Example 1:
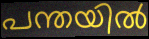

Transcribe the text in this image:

പന്തയിൽ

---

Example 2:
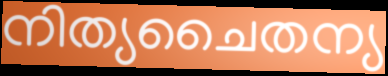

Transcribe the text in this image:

നിത്യചൈതന്യ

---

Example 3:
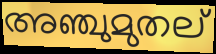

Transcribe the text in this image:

അഞ്ചുമുതല്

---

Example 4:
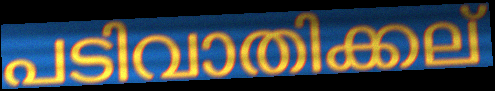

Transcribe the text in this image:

പടിവാതിക്കല്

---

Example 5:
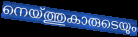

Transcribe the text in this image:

നെയ്ത്തുകാരുടെയും